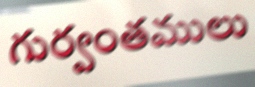
గుర్వంతములు